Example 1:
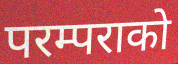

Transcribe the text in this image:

परम्पराको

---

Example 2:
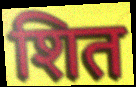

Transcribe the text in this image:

शित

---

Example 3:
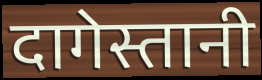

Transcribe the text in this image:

दागेस्तानी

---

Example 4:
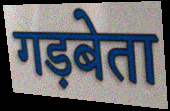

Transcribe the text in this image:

गड़बेता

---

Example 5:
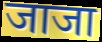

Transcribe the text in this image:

जाजा